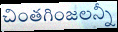
చింతగింజలన్నీ